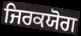
ਜਿਰਕਯੋਗ